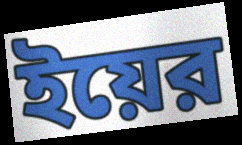
ইয়ের